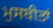
ਮੁਸਬੀਤਾਂ